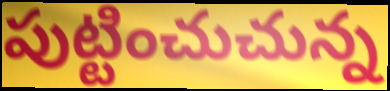
పుట్టించుచున్న